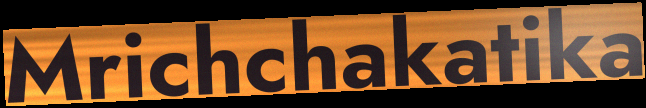
Mrichchakatika